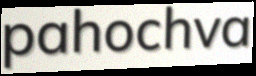
pahochva